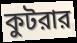
কুটরার